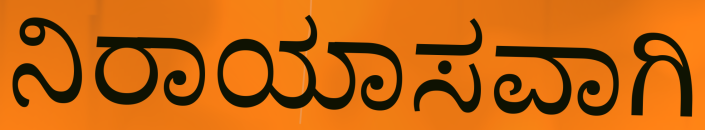
ನಿರಾಯಾಸವಾಗಿ